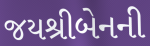
જયશ્રીબેનની